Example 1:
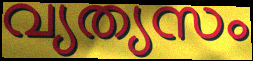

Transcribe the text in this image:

വ്യത്യസം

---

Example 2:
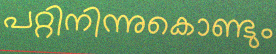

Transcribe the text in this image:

പറ്റിനിന്നുകൊണ്ടും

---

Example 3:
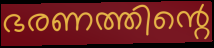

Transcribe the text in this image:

ഭരണത്തിന്റെ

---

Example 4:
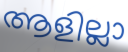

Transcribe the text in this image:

ആളില്ലാ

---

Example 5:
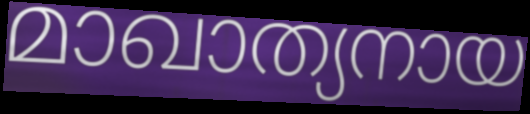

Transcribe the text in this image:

മാഖാത്യനായ